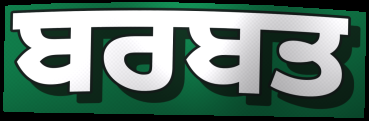
ਬਰਬਤ